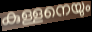
കുള്ളനെയും